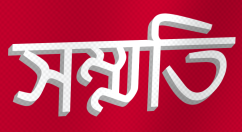
সম্মতি